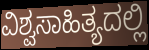
ವಿಶ್ವಸಾಹಿತ್ಯದಲ್ಲಿ